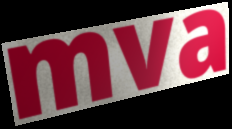
mva